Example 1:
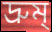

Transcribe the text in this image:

দ্রুম্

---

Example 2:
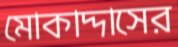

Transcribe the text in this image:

মোকাদ্দাসের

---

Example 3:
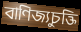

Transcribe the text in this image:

বাণিজ্যচুক্তি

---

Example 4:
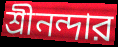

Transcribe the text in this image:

শ্রীনন্দার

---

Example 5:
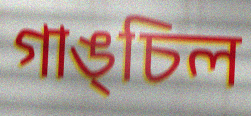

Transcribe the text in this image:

গাঙ্‌চিল